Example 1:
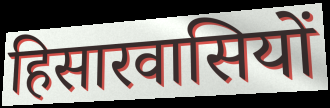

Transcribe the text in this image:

हिसारवासियों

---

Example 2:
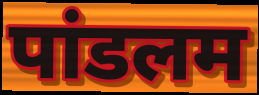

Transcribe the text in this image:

पांडलम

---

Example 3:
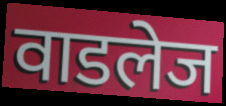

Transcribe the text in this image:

वाडलेज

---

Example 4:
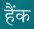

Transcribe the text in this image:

हैंक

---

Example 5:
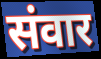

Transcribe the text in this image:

संवार